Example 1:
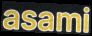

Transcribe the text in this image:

asami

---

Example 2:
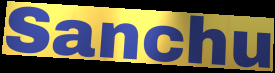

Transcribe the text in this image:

Sanchu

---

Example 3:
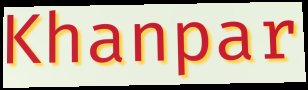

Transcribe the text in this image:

Khanpar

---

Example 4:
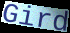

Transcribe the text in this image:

Gird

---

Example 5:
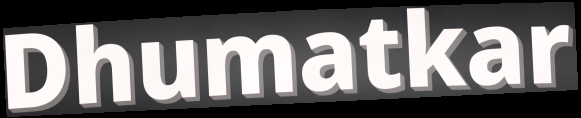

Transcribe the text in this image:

Dhumatkar